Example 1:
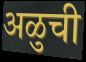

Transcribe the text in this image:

अळुची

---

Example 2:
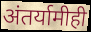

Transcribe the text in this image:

अंतर्यामीही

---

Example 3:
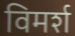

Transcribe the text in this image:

विमर्श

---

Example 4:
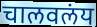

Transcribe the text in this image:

चालवलंय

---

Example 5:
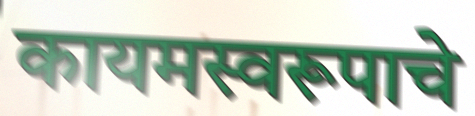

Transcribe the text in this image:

कायमस्वरूपाचे